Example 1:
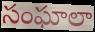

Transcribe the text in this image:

సంఘాలా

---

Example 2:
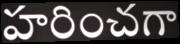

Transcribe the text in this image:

హరించగా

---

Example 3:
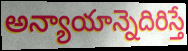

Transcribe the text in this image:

అన్యాయాన్నెదిరిస్తే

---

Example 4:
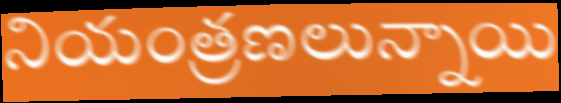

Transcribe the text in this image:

నియంత్రణలున్నాయి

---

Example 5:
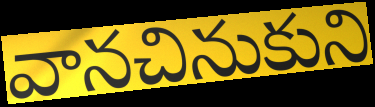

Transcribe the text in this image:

వానచినుకుని